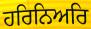
ਹਰਿਨਿਅਰਿ